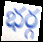
భర్గ